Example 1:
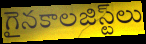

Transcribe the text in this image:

గైనకాలజిస్ట్‌లు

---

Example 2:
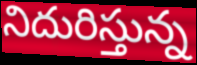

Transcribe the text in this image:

నిదురిస్తున్న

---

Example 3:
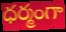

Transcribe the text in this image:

ధర్మంగా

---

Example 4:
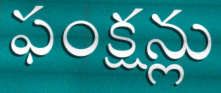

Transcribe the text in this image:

ఫంక్షన్లు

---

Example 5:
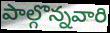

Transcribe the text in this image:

పాల్గొన్నవారి